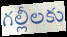
గల్లీలకు